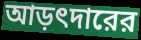
আড়ৎদারের